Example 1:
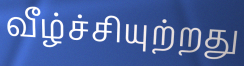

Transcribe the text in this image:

வீழ்ச்சியுற்றது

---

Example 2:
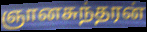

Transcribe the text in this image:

ஞானசுந்தரன்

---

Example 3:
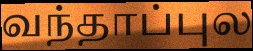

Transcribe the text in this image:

வந்தாப்புல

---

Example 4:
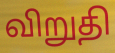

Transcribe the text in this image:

விறுதி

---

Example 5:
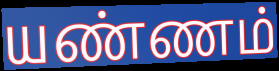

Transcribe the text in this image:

யண்ணம்